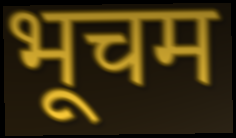
भूचम